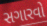
સગારવો